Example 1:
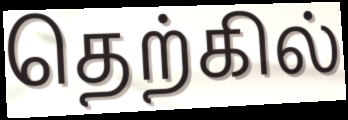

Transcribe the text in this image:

தெற்கில்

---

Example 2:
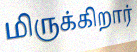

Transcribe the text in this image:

மிருக்கிறார்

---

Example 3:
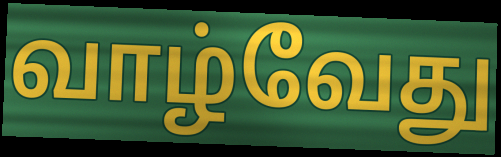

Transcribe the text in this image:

வாழ்வேது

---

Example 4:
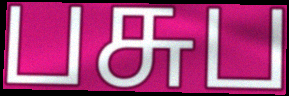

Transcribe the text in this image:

பசுப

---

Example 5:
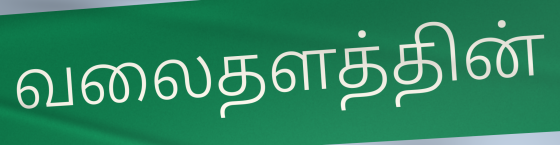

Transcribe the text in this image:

வலைதளத்தின்